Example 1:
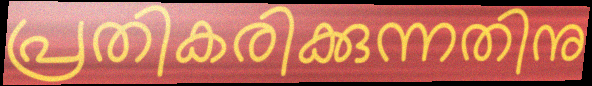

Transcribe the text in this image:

പ്രതികരിക്കുന്നതിനു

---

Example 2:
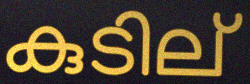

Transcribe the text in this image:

കുടില്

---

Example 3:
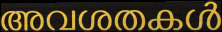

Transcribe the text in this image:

അവശതകൾ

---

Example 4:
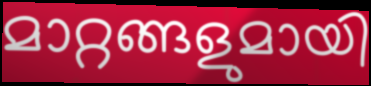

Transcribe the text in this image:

മാറ്റങ്ങളുമായി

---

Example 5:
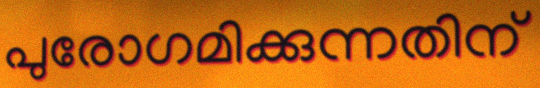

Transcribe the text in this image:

പുരോഗമിക്കുന്നതിന്